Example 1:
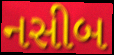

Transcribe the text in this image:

નસીબ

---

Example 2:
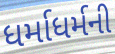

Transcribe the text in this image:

ધર્માધર્મની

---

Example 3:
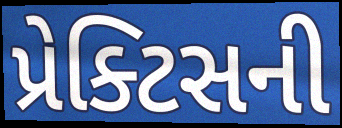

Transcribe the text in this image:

પ્રેક્ટિસની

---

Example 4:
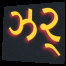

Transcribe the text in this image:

ઝર્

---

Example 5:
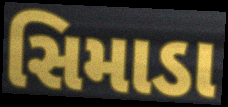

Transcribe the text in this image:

સિમાડા